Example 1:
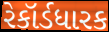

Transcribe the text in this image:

રેકૉર્ડધારક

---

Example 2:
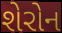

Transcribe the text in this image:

શેરોન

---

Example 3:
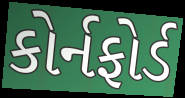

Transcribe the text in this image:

કોર્નફોર્ડ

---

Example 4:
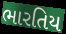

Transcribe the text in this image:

ભારતિય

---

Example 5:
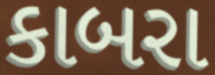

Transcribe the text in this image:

કાબરા